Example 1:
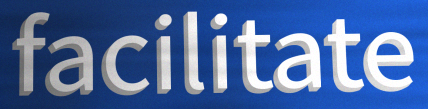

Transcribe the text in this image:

facilitate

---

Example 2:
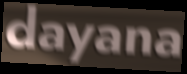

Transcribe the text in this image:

dayana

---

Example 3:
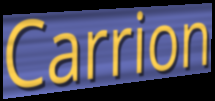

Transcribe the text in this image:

Carrion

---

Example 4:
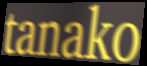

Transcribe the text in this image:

tanako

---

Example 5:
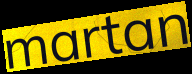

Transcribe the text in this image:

martan